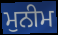
ਮੁਨੀਮ